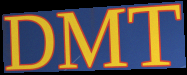
DMT